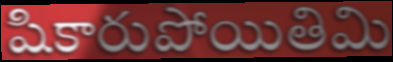
షికారుపోయితిమి